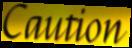
Caution